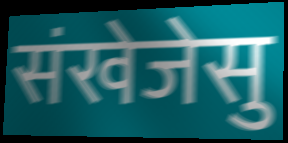
संखेजेसु